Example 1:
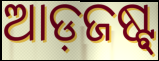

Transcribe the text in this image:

ଆଡ଼ଜଷ୍ଟ୍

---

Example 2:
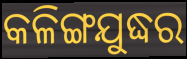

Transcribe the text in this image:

କଳିଙ୍ଗଯୁଦ୍ଧର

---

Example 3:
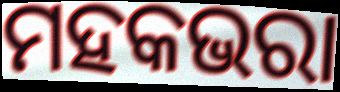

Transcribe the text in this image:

ମହକଭରା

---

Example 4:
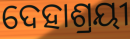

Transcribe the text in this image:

ଦେହାଶ୍ରୟୀ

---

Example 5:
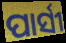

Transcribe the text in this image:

ପାର୍ସୀ